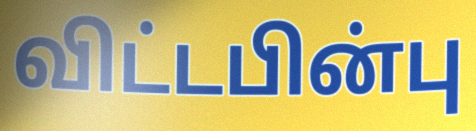
விட்டபின்பு